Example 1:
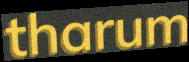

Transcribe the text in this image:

tharum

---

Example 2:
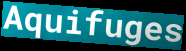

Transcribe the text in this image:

Aquifuges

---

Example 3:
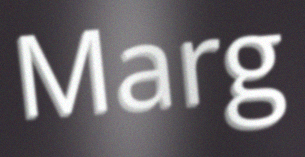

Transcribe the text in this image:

Marg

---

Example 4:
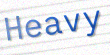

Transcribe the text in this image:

Heavy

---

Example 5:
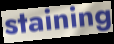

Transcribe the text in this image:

staining